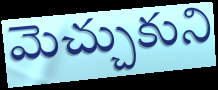
మెచ్చుకుని